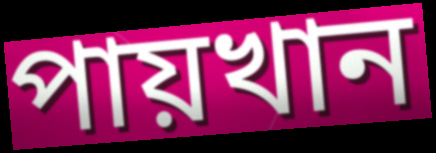
পায়খান